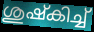
ശുഷ്കിച്ച്